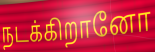
நடக்கிறானோ